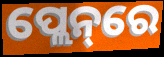
ପ୍ଲେନ୍‌ରେ